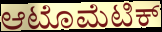
ಆಟೊಮೆಟಿಕ್